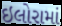
ઇલોરામાં